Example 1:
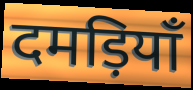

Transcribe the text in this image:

दमड़ियाँ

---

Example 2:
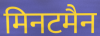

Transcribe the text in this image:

मिनटमैन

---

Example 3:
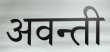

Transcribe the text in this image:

अवन्ती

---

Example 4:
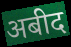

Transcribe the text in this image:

अबीद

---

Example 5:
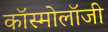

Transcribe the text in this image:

कॉस्मोलॉजी